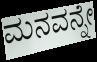
ಮನವನ್ನೇ